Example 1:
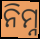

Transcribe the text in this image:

ନିମ୍ନ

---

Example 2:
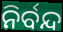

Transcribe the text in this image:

ନିର୍ବନ୍ଦ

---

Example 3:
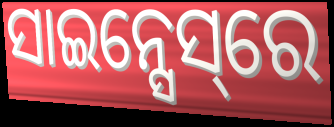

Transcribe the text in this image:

ସାଇନ୍ସେସ୍‌ରେ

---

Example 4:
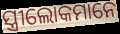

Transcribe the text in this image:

ସ୍ତ୍ରୀଲୋକମାନେ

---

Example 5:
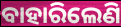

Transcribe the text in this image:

ବାହାରିଲେଣି